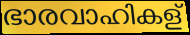
ഭാരവാഹികള്